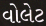
વોલેટ